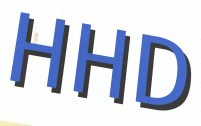
HHD